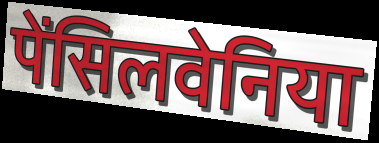
पेंसिलवेनिया